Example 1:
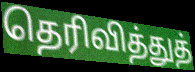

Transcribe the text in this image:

தெரிவித்துத்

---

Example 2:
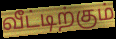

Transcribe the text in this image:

வீட்டிற்கும்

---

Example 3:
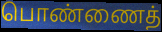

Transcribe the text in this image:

பொண்ணைத்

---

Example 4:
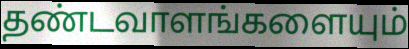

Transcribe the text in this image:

தண்டவாளங்களையும்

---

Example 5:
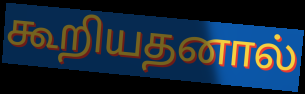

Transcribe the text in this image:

கூறியதனால்